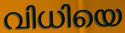
വിധിയെ